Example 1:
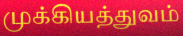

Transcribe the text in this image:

முக்கியத்துவம்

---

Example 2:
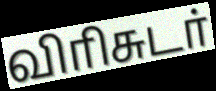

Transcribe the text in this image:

விரிசுடர்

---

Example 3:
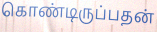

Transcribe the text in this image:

கொண்டிருப்பதன்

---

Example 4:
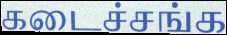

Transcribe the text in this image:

கடைச்சங்க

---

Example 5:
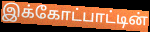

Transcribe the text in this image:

இக்கோட்பாட்டின்